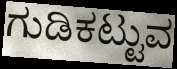
ಗುಡಿಕಟ್ಟುವ